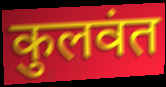
कुलवंत